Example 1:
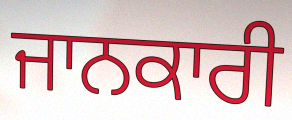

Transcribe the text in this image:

ਜਾਨਕਾਰੀ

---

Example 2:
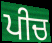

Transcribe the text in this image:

ਪੀਚ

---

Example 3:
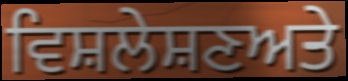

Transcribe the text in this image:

ਵਿਸ਼ਲੇਸ਼ਣਅਤੇ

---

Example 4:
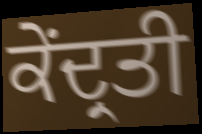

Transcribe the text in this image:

ਕੇਂਦ੍ਰਤੀ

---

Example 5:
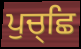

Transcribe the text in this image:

ਪੁਚ੍ਛਿ